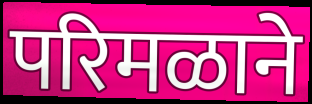
परिमळाने